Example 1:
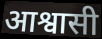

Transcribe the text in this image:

आश्वासी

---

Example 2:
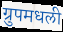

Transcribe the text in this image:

ग्रुपमधली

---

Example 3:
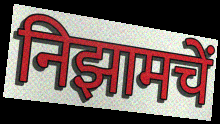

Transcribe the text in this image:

निझामचें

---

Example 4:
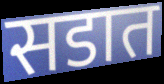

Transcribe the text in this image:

सडात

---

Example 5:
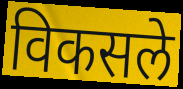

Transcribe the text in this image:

विकसले